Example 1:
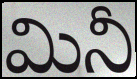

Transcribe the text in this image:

మినీ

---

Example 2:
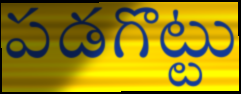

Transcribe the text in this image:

పడగొట్టు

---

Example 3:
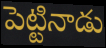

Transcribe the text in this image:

పెట్టినాడు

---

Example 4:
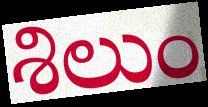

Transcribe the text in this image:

శిలుం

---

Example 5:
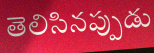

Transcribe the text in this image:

తెలిసినప్పుడు